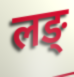
लङ्